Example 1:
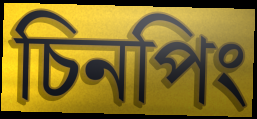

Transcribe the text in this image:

চিনপিং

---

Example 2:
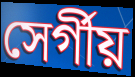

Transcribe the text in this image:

সের্গীয়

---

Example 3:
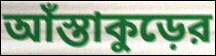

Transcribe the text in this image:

আঁস্তাকুড়ের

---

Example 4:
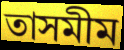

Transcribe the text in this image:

তাসমীম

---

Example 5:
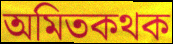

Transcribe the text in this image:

অমিতকথক